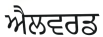
ਐਲਵਰਡ